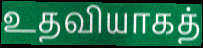
உதவியாகத்